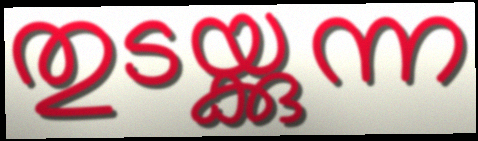
തുടയ്ക്കുന്ന